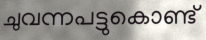
ചുവന്നപട്ടുകൊണ്ട്